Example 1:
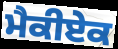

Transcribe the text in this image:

ਮੈਕੀਏਕ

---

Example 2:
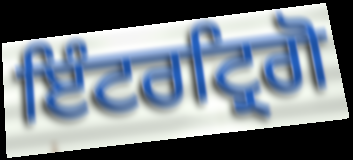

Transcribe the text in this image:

ਇੰਟਰਟ੍ਰਿਗੋ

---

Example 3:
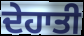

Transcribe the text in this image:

ਦੇਹਾਤੀ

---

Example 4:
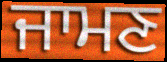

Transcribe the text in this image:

ਜਾਮਣ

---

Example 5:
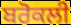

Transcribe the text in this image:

ਬਰੋਕਲੀ